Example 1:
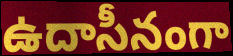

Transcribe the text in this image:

ఉదాసీనంగా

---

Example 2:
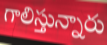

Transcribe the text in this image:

గాలిస్తున్నారు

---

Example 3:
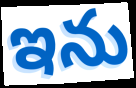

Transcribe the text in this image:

ఇను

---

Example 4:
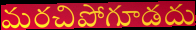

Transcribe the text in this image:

మరచిపోగూడదు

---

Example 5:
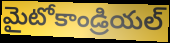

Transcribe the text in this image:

మైటోకాండ్రియల్